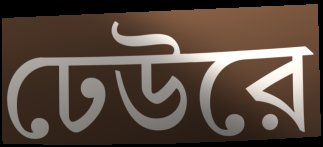
ঢেউরে